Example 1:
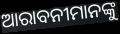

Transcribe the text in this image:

ଆରାବନୀମାନଙ୍କୁ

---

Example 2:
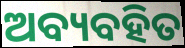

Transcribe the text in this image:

ଅବ୍ୟବହିତ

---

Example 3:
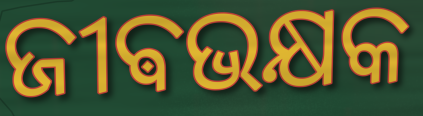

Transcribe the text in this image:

ଜୀଵଭକ୍ଷକ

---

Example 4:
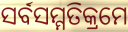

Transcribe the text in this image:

ସର୍ବସମ୍ମତିକ୍ରମେ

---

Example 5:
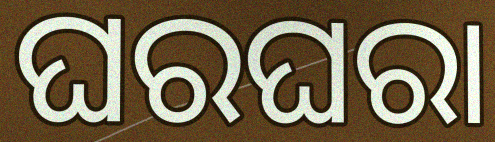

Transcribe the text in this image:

ଘରଘରା